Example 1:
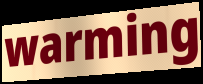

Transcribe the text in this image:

warming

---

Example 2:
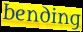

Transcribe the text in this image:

bending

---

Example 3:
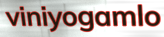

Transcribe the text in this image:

viniyogamlo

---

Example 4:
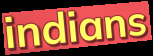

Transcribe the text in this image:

indians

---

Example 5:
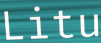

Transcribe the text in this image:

Litu